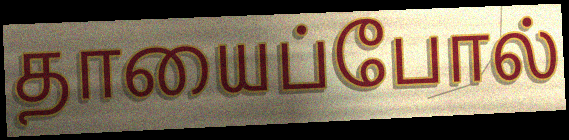
தாயைப்போல்